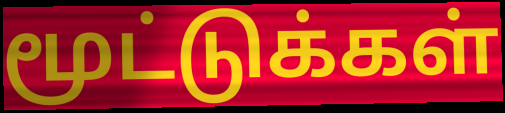
மூட்டுக்கள்